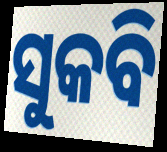
ସୁକବି